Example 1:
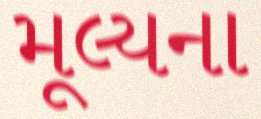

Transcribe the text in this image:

મૂલ્યના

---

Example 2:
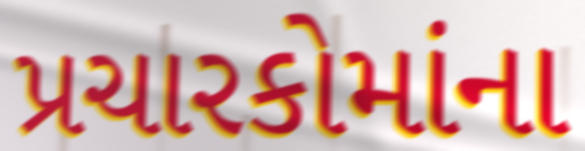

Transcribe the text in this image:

પ્રચારકોમાંના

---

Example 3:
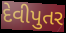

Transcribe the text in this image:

દેવીપુતર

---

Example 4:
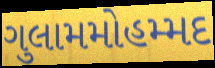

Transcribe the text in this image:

ગુલામમોહમ્મદ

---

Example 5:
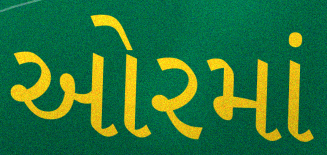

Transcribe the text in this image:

ઓરમાં